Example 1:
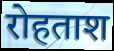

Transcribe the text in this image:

रोहताश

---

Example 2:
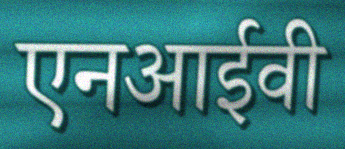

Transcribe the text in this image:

एनआईवी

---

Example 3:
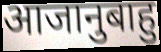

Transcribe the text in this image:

आजानुबाहु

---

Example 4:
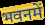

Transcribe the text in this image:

भवनमें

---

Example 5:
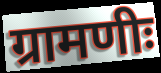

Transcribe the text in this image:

ग्रामणीः